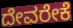
ದೇವರೇಕೆ